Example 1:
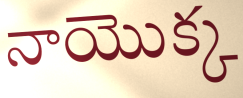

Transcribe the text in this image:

నాయొక్క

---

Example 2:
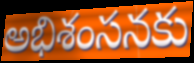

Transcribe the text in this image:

అభిశంసనకు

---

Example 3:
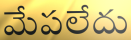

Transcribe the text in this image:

మేపలేదు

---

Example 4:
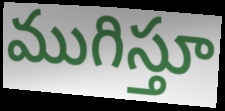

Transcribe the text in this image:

ముగిస్తూ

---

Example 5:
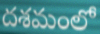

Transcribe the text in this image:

దశమంలో